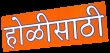
होळीसाठी